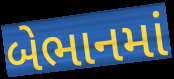
બેભાનમાં